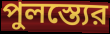
পুলস্ত্যের